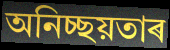
অনিচ্ছয়তাৰ